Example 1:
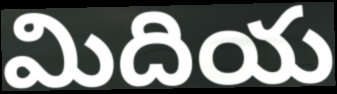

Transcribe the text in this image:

మిదియ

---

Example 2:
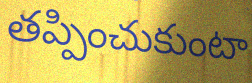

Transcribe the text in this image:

తప్పించుకుంటా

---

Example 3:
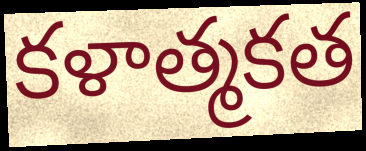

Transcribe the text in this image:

కళాత్మకత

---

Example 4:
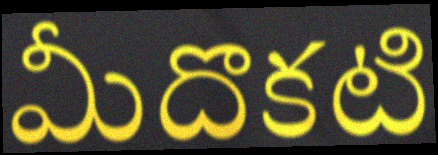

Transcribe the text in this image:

మీదొకటి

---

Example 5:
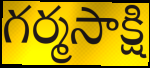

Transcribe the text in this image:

గర్మసాక్షి